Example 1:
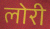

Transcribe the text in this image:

लोरी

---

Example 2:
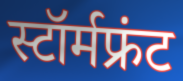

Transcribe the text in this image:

स्टॉर्मफ्रंट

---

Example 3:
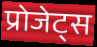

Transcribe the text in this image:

प्रोजेट्स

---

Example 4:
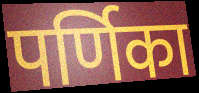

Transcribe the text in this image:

पर्णिका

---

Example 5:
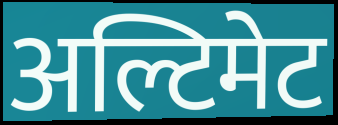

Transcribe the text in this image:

अल्टिमेट